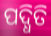
ପଦ୍ଧିତି